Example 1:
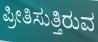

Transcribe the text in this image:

ಪ್ರೀತಿಸುತ್ತಿರುವ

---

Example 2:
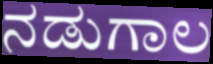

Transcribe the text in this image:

ನಡುಗಾಲ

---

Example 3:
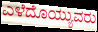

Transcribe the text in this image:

ಎಳೆದೊಯ್ಯುವರು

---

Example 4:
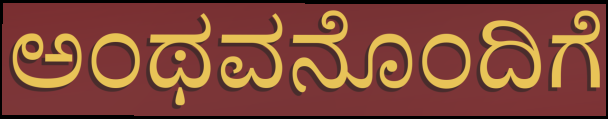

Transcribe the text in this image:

ಅಂಥವನೊಂದಿಗೆ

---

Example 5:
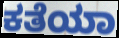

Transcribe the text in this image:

ಕತೆಯಾ